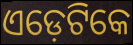
ଏଡ଼େଟିକେ